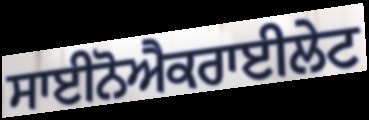
ਸਾਈਨੋਐਕਰਾਈਲੇਟ